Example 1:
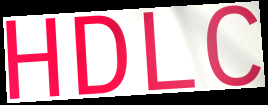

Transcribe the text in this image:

HDLC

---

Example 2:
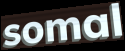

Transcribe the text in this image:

somal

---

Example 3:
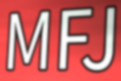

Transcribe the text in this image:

MFJ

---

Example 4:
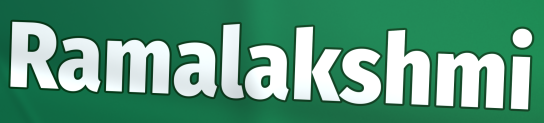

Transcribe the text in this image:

Ramalakshmi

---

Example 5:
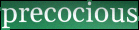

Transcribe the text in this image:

precocious